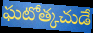
ఘటోత్కచుడే